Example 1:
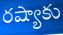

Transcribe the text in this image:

రష్యాకు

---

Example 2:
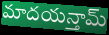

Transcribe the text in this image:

మాదయన్తామ్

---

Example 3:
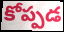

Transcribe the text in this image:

కోప్పడ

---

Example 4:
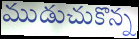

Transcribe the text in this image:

ముడుచుకొన్న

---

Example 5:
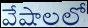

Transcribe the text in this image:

వేషాలలో